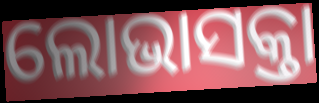
ଲୋଭାସକ୍ତା